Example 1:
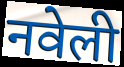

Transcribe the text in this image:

नवेली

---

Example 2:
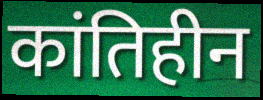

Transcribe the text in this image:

कांतिहीन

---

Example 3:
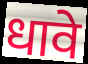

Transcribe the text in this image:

धावे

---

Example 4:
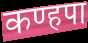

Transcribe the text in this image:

कण्हपा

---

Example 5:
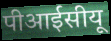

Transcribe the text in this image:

पीआईसीयू